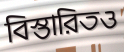
বিস্তারিতও